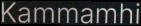
Kammamhi